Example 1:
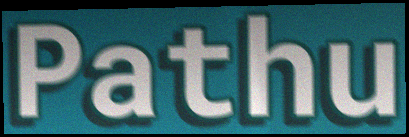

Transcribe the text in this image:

Pathu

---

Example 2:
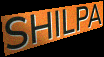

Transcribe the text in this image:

SHILPA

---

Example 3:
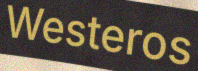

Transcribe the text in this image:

Westeros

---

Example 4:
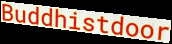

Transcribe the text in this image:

Buddhistdoor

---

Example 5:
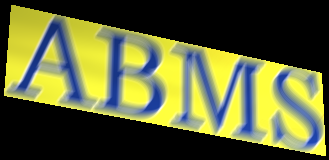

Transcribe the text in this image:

ABMS